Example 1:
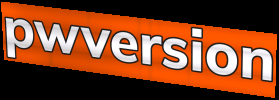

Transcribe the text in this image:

pwversion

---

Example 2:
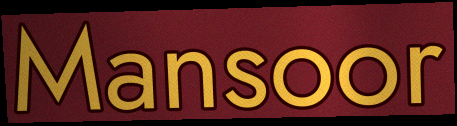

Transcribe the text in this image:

Mansoor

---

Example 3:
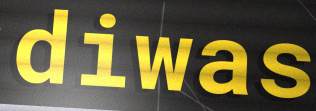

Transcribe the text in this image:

diwas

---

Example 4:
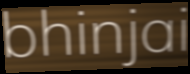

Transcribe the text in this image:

bhinjai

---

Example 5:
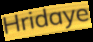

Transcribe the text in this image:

Hridaye